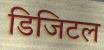
डिजिटल